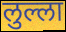
लुल्ला